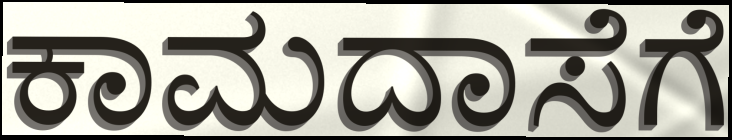
ಕಾಮದಾಸೆಗೆ